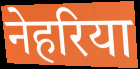
नेहरिया